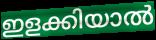
ഇളക്കിയാൽ